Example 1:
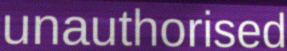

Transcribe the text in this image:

unauthorised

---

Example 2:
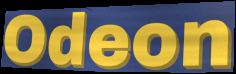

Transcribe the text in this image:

Odeon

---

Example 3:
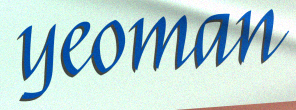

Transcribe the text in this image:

yeoman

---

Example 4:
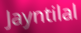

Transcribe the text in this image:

Jayntilal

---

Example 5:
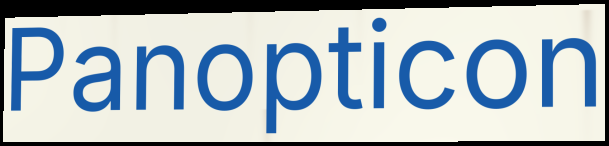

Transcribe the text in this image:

Panopticon